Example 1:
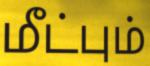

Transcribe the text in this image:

மீட்பும்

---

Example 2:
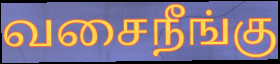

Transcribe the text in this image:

வசைநீங்கு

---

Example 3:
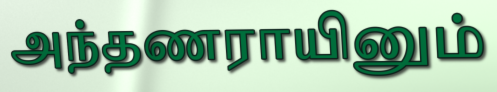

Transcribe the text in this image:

அந்தணராயினும்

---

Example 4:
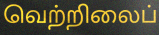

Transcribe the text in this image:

வெற்றிலைப்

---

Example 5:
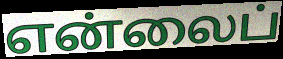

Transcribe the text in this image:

என்லைப்